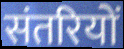
संतरियों